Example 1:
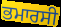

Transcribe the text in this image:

ਭਮਾਰਸੀ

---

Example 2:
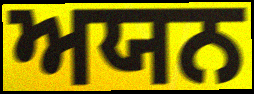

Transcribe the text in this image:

ਅਯਨ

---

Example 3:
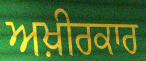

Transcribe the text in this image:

ਅਖ਼ੀਰਕਾਰ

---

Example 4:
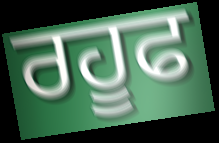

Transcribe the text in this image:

ਰਹੂਫ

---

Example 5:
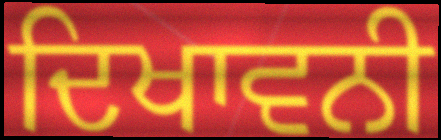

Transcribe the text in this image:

ਦਿਖਾਵਨੀ